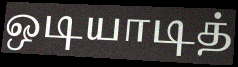
ஒடியாடித்